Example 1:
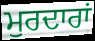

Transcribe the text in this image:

ਮੁਰਦਾਰਾਂ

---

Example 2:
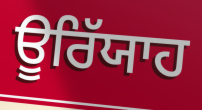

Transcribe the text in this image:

ਊਰਿੱਯਾਹ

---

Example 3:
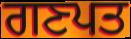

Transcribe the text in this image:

ਗਣਪਤ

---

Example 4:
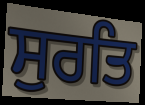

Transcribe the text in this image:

ਸੁਰਤਿ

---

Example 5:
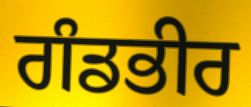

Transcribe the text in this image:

ਗੰਡਭੀਰ